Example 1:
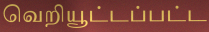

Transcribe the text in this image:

வெறியூட்டப்பட்ட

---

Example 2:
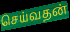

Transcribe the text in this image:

செய்வதன்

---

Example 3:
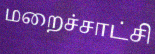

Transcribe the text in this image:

மறைச்சாட்சி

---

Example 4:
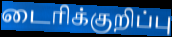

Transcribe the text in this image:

டைரிக்குறிப்பு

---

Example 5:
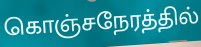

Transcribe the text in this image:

கொஞ்சநேரத்தில்